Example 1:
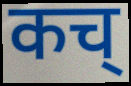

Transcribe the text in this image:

कच्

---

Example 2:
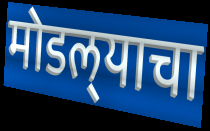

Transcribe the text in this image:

मोडल्याचा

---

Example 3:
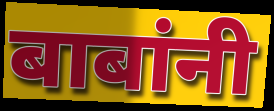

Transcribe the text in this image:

बाबांनी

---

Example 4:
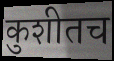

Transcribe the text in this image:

कुशीतच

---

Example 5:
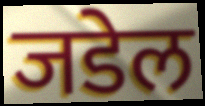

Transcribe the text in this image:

जडेल